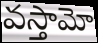
వస్తామో